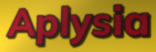
Aplysia